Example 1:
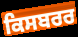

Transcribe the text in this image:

ਕਿਸਬਰਰ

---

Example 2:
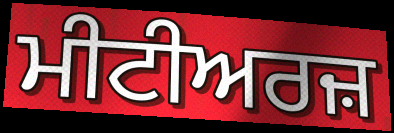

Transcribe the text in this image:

ਮੀਟੀਅਰਜ਼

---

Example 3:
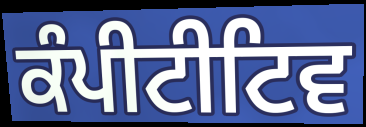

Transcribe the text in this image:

ਕੰਪੀਟੀਟਿਵ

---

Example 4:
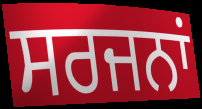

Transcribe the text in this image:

ਸਰਜਨਾਂ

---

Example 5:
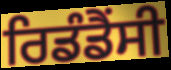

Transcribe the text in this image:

ਰਿਡੰਡੈਂਸੀ